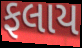
ફલાય